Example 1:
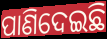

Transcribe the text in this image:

ପାଣିଦେଇଛି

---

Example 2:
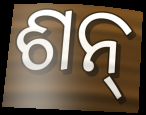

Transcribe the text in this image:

ଶନ୍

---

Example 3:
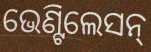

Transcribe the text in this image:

ଭେଣ୍ଟିଲେସନ୍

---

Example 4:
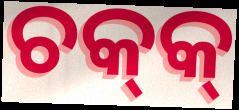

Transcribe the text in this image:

ଚକ୍‌କ୍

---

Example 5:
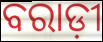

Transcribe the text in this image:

ବରାଡ଼ୀ